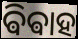
ଵିଵାହ